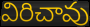
విరిచావు